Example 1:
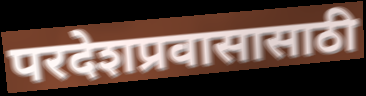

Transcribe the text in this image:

परदेशप्रवासासाठी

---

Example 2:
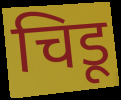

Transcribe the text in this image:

चिडू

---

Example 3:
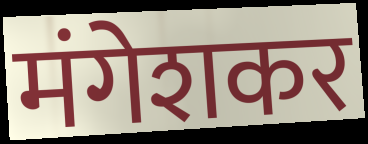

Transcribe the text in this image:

मंगेशकर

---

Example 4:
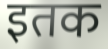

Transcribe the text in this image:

इतक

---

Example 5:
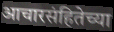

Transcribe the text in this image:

आचारसंहितेच्या